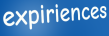
expiriences